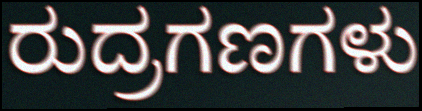
ರುದ್ರಗಣಗಳು